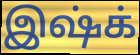
இஷ்க்